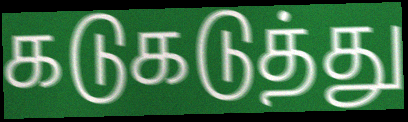
கடுகடுத்து